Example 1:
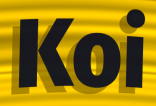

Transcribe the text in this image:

Koi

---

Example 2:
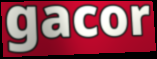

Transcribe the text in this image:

gacor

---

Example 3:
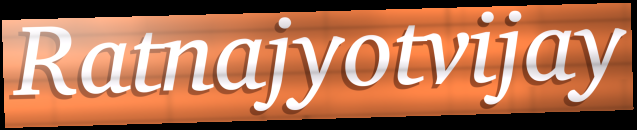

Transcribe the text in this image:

Ratnajyotvijay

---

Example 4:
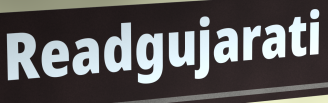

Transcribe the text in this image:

Readgujarati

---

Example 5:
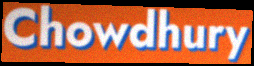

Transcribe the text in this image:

Chowdhury